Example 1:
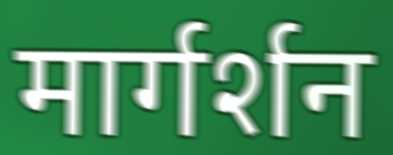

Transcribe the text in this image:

मार्गर्शन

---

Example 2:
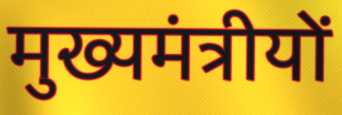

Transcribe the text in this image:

मुख्यमंत्रीयों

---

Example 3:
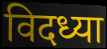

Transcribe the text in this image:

विदध्या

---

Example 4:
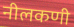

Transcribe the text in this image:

नीलकणी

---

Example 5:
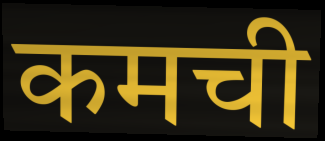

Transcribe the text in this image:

कमची